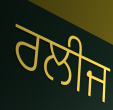
ਰਲੀਜ